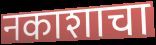
नकाशाचा